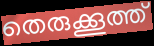
തെരുക്കൂത്ത്